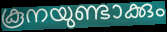
കൂനയുണ്ടാക്കും